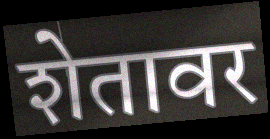
शेतावर